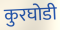
कुरघोडी